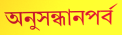
অনুসন্ধানপর্ব